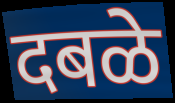
दबळे